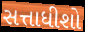
સત્તાધીશો